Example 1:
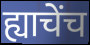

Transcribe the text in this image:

ह्याचेंच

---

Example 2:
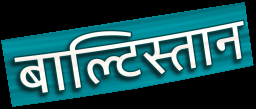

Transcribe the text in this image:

बाल्टिस्तान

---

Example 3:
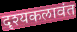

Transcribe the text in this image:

दृश्यकलावंत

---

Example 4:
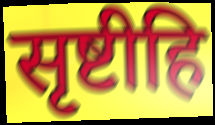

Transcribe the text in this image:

सृष्टीहि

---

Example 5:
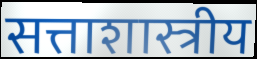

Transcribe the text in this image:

सत्ताशास्त्रीय